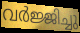
വർജ്ജിച്ചു